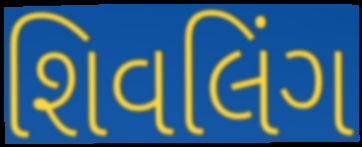
શિવલિંગ